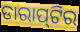
ଡାରାପ୍‌ଟିର